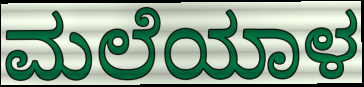
ಮಲೆಯಾಳ